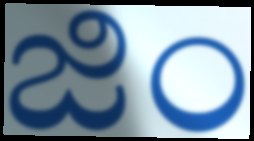
జిం